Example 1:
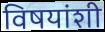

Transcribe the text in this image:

विषयांशी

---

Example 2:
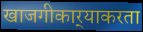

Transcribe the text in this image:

खाजगीकार्याकरता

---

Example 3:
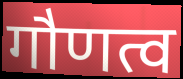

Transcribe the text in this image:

गौणत्व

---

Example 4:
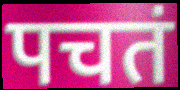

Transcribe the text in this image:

पचतं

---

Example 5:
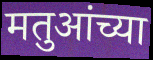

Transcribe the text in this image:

मतुआंच्या